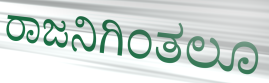
ರಾಜನಿಗಿಂತಲೂ